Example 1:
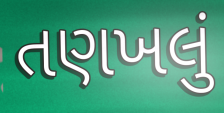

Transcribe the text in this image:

તણખલું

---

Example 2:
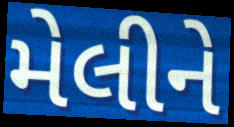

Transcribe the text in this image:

મેલીને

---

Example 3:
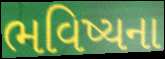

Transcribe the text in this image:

ભવિષ્યના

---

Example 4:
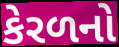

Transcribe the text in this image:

કેરળનો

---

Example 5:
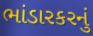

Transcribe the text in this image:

ભાંડારકરનું